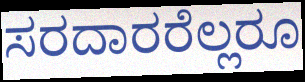
ಸರದಾರರೆಲ್ಲರೂ